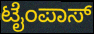
ಟೈಂಪಾಸ್